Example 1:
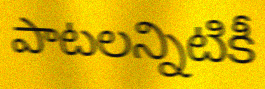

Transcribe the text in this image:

పాటలన్నిటికీ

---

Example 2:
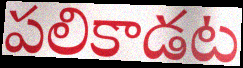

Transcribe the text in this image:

పలికాడట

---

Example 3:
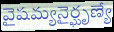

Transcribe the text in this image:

వైషమ్యనైర్ఘృణ్యే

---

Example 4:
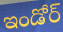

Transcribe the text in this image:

ఇండోర్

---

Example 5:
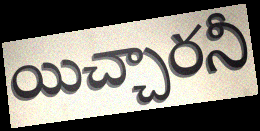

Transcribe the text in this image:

యిచ్చారనీ